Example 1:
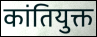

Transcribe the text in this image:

कांतियुक्त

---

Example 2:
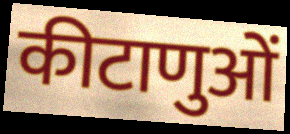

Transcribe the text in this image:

कीटाणुओं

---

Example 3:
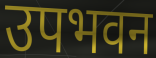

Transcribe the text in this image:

उपभवन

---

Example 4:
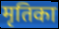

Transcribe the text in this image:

मृतिका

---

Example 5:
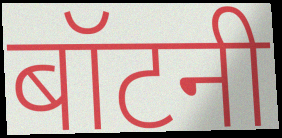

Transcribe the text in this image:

बॉटनी